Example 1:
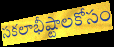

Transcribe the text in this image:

సకలాభీష్టాలకోసం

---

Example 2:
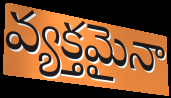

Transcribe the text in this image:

వ్యక్తమైనా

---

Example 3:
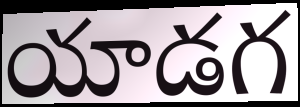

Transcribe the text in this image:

యాడగ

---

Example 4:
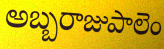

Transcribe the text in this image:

అబ్బరాజుపాలెం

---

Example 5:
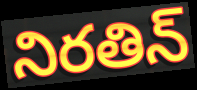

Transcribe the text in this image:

నిరతిన్